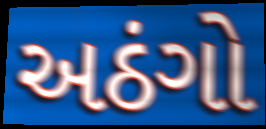
અઠંગો